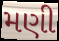
મણી